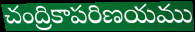
చంద్రికాపరిణయము